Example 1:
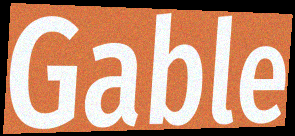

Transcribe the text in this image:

Gable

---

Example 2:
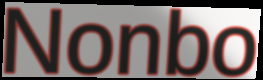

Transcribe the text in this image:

Nonbo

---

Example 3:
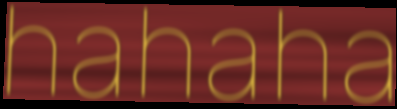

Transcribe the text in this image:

hahaha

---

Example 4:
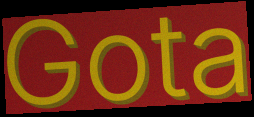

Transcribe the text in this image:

Gota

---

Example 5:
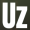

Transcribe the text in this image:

Uz